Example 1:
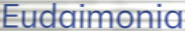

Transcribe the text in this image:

Eudaimonia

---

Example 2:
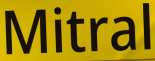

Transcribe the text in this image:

Mitral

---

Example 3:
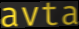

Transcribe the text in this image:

avta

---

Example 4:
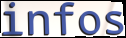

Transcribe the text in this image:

infos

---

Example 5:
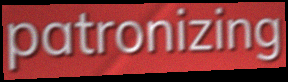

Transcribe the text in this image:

patronizing